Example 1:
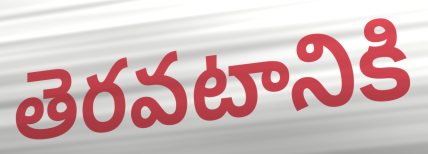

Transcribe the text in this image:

తెరవటానికి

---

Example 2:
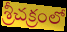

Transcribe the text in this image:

శ్రీచక్రంలో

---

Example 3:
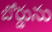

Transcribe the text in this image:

బోర్డును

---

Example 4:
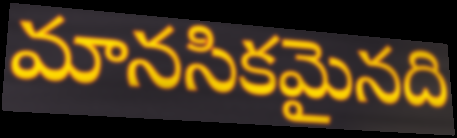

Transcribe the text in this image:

మానసికమైనది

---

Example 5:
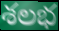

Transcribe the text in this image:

శలభ